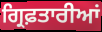
ਗ੍ਰਿਫ਼ਤਾਰੀਆਂ